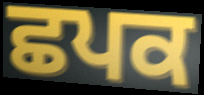
ਛਪਕ